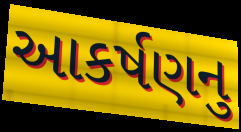
આકર્ષણનુ